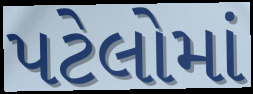
પટેલોમાં